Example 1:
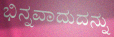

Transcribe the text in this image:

ಭಿನ್ನವಾದುದನ್ನು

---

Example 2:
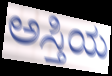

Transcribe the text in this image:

ಅಸ್ತಿಯ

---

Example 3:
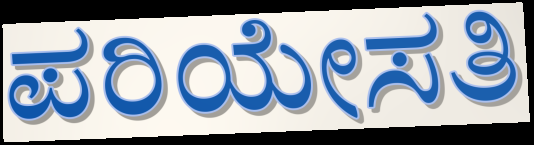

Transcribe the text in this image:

ಪರಿಯೇಸತಿ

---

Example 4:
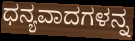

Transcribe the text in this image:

ಧನ್ಯವಾದಗಳನ್ನ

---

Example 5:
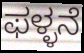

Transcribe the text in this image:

ಫಳ್ಳನೆ